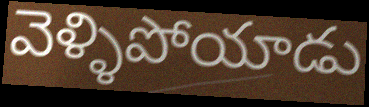
వెళ్ళిపోయాడు